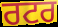
ਰਟਰ